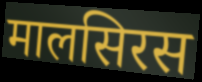
मालसिरस